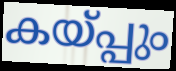
കയ്പ്പും